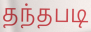
தந்தபடி